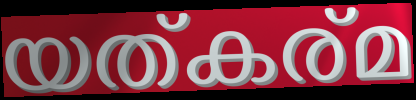
യത്കര്മ